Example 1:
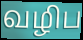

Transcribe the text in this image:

வழிப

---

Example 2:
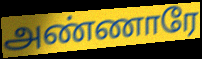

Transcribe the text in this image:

அண்ணாரே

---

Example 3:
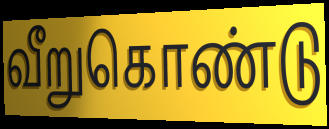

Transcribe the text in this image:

வீறுகொண்டு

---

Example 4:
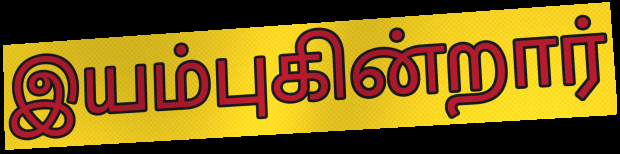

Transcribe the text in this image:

இயம்புகின்றார்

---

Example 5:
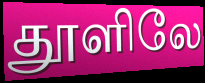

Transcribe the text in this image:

தூளிலே